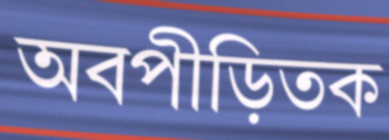
অবপীড়িতক